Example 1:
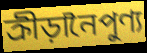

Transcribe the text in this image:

ক্রীড়ানৈপুণ্য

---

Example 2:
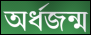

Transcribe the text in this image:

অর্ধজন্ম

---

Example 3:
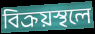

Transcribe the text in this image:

বিক্রয়স্থলে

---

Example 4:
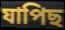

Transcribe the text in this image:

যাপিছ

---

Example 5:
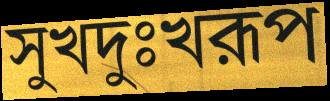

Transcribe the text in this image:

সুখদুঃখরূপ